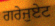
ਗਰੇਜੁਏਟ